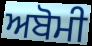
ਅਬੋਮੀ